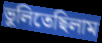
ভুলিতেছিলাম